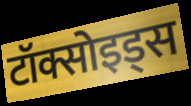
टॉक्सोइड्स